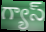
గ్యాస్